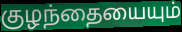
குழந்தையையும்